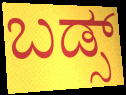
ಬಡ್ಸ್